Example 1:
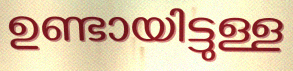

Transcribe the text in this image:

ഉണ്ടായിട്ടുള്ള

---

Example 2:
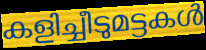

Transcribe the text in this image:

കളിച്ചീടുമട്ടകൾ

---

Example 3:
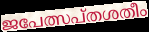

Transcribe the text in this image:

ജപേത്സപ്തശതീം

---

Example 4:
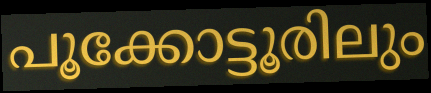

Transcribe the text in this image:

പൂക്കോട്ടൂരിലും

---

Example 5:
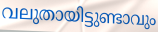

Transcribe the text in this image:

വലുതായിട്ടുണ്ടാവും